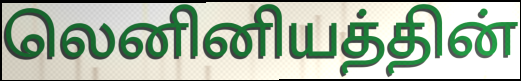
லெனினியத்தின்